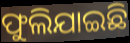
ଫୁଲିଯାଇଛି